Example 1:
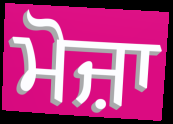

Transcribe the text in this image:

ਮੋਜ਼ਾ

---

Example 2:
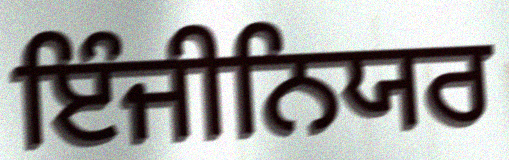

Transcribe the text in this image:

ਇੰਜੀਨਿਯਰ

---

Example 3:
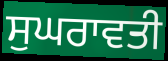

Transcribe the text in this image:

ਸੁਘਰਾਵਤੀ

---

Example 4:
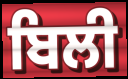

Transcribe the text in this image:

ਬਿਲੀ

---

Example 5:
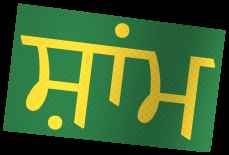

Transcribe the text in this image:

ਸ਼ਾਂਮ